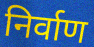
निर्वाण